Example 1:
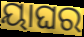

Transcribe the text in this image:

ୟାଘର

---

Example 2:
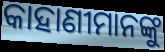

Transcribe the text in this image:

କାହାଣୀମାନଙ୍କୁ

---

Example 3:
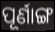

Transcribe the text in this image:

ପୂର୍ଣାଙ୍ଗ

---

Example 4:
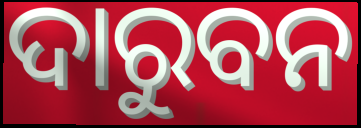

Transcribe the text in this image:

ଦାରୁବନ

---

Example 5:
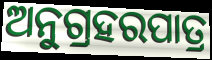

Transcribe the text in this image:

ଅନୁଗ୍ରହରପାତ୍ର